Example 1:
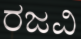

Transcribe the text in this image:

ರಜವಿ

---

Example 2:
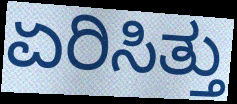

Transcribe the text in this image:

ಏರಿಸಿತ್ತು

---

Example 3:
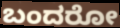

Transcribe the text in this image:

ಬಂದರೋ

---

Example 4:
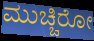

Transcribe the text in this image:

ಮುಚ್ಚಿರೋ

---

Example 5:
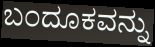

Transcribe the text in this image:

ಬಂದೂಕವನ್ನು